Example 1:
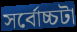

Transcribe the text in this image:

সর্বোচ্চটা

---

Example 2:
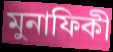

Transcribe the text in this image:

মুনাফিকী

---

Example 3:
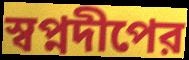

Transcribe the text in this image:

স্বপ্নদীপের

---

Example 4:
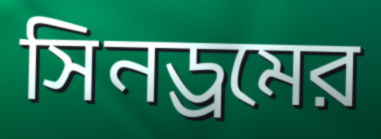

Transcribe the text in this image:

সিনড্রমের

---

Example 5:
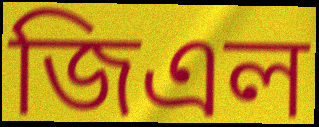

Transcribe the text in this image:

জিএল